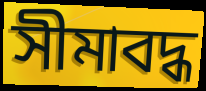
সীমাবদ্ধ